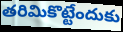
తరిమికొట్టేందుకు